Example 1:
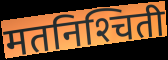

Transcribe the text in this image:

मतनिश्चिती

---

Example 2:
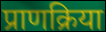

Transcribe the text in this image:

प्राणक्रिया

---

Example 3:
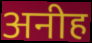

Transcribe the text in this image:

अनीह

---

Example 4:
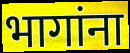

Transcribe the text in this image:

भागांना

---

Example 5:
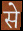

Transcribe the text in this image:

से